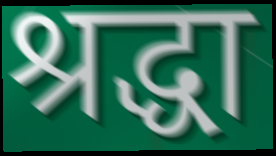
श्रद्धा